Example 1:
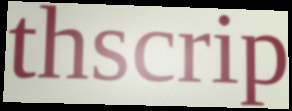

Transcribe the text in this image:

thscrip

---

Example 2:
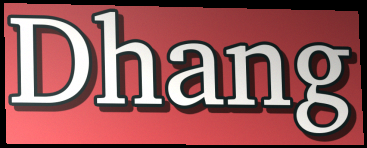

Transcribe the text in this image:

Dhang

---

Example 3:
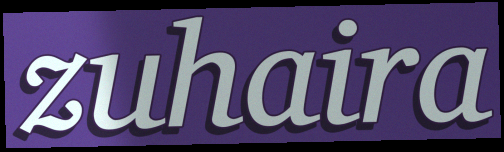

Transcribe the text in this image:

zuhaira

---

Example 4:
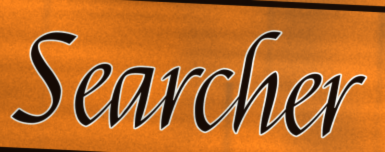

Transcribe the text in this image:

Searcher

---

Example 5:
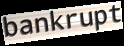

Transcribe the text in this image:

bankrupt